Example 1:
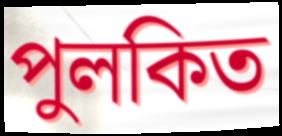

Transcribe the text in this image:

পুলকিত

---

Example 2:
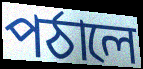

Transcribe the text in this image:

পঠালে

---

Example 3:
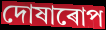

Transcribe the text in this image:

দোষাৰোপ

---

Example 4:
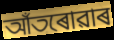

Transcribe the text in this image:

আঁতৰোৱাৰ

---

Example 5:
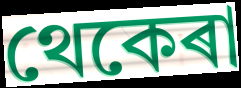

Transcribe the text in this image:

থেকেৰা